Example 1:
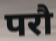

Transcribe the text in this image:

परौ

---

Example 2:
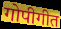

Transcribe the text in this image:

गोपीगीत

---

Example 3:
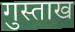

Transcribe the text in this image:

गुस्ताख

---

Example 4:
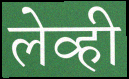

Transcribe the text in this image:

लेव्ही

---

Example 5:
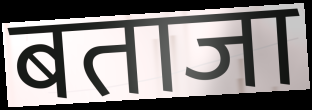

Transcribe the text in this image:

बताजा